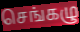
செங்கழு